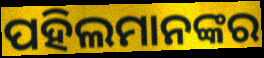
ପହିଲମାନଙ୍କର